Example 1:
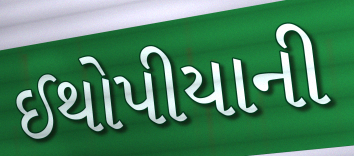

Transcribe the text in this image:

ઈથોપીયાની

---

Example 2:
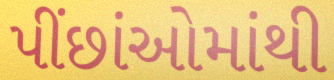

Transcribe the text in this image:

પીંછાંઓમાંથી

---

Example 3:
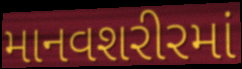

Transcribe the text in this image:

માનવશરીરમાં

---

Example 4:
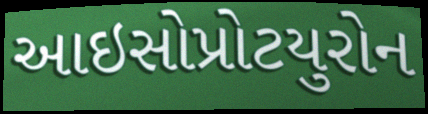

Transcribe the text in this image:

આઇસોપ્રોટયુરોન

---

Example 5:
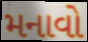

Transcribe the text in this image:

મનાવો